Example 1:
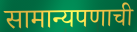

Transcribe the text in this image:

सामान्यपणाची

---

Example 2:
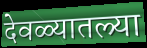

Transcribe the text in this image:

देवळ्यातल्या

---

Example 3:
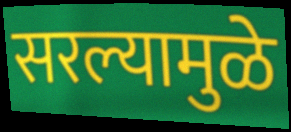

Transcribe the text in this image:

सरल्यामुळे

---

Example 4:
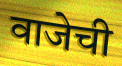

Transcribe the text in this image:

वाजेची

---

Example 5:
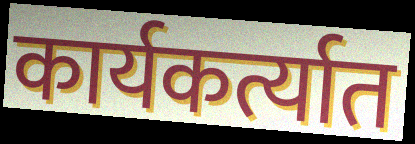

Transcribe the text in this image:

कार्यकर्त्यात